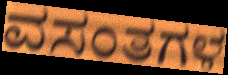
ವಸಂತಗಳ